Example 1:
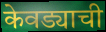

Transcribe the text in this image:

केवड्याची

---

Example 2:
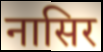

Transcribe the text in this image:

नासिर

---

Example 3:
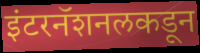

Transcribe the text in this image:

इंटरनॅशनलकडून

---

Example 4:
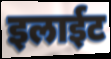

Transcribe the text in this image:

इलाईट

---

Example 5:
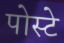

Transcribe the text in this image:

पोस्टे